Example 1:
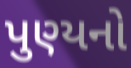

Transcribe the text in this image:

પુણ્યનો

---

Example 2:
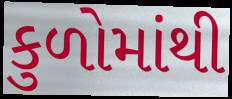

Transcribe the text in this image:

કુળોમાંથી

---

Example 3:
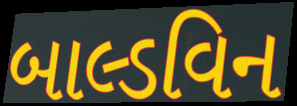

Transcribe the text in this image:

બાલ્ડવિન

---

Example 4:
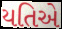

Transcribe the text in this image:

યતિએ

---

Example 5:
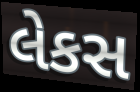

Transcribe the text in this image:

લેકસ